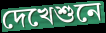
দেখেশুনে